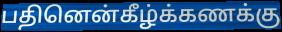
பதினென்கீழ்க்கணக்கு